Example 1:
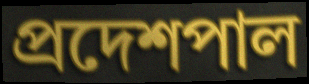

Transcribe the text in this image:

প্রদেশপাল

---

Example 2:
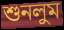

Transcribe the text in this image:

শুনলুম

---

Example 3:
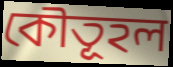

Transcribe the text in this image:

কৌতূহল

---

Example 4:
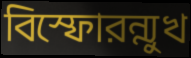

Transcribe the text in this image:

বিস্ফোরন্মুখ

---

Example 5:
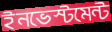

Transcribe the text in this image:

ইনভেস্টমেন্ট